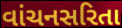
વાંચનસરિતા